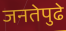
जनतेपुढे